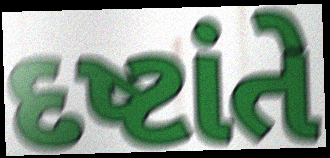
દષ્ટાંતે